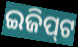
ଇଜିପ୍‍ଟ